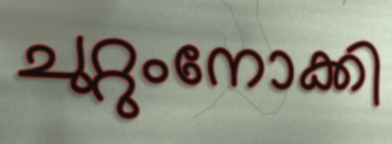
ചുറ്റുംനോക്കി